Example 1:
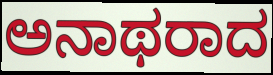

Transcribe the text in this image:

ಅನಾಥರಾದ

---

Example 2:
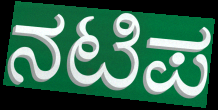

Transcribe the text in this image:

ನಟಿಪ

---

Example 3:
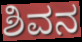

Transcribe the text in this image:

ಶಿವನ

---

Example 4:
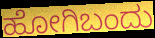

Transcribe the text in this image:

ಹೋಗಿಬಂದು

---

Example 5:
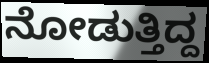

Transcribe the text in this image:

ನೋಡುತ್ತಿದ್ದ